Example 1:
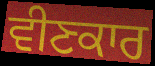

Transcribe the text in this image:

ਵੀਣਕਾਰ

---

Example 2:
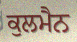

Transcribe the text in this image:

ਕੁਲਮੈਨ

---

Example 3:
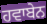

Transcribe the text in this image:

ਹਵਾਬੇਨ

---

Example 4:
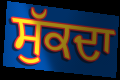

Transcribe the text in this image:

ਸੁੱਕਦਾ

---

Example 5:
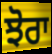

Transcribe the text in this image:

ਝੋਰਾ